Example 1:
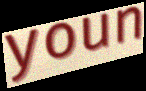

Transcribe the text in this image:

youn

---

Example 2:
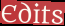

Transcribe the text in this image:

Edits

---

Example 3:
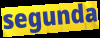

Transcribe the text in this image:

segunda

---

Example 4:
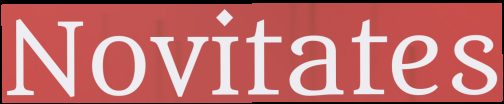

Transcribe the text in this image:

Novitates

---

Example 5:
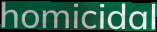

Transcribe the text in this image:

homicidal